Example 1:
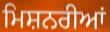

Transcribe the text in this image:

ਮਿਸ਼ਨਰੀਆਂ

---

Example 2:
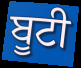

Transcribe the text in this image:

ਬੂਟੀ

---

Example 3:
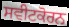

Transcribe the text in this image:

ਸਵੀਟਕੋਰਨ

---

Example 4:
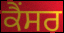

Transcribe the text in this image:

ਕੈਂਸਰ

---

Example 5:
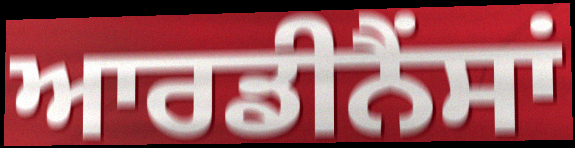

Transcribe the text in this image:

ਆਰਡੀਨੈਂਸਾਂ